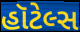
હૉટેલ્સ